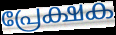
പ്രേക്ഷക